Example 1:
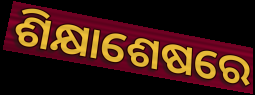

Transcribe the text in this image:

ଶିକ୍ଷାଶେଷରେ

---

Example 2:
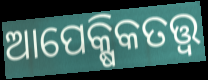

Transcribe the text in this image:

ଆପେକ୍ଷିକତତ୍ତ୍ୱ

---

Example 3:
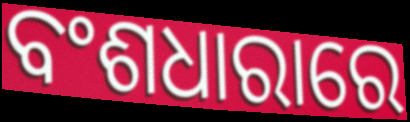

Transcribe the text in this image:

ବଂଶଧାରାରେ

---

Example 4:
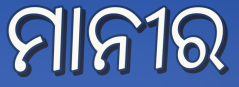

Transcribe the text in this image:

ମାନୀର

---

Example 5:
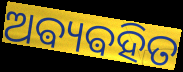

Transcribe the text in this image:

ଅଵ୍ୟଵହିତ